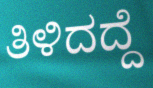
ತಿಳಿದದ್ದೆ